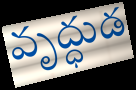
వృద్ధుడ